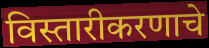
विस्तारीकरणाचे